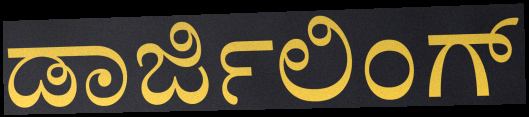
ಡಾರ್ಜಿಲಿಂಗ್